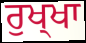
ਰੁਖ੍ਖਾ